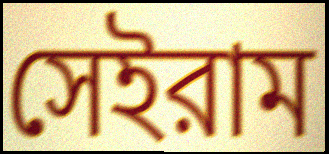
সেইরাম